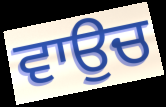
ਵਾਉਚ